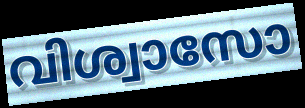
വിശ്വാസോ